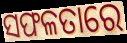
ସଫଳତାରେ